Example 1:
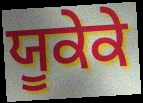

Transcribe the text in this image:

ਯੂਕੇਕੇ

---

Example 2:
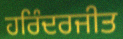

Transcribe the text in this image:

ਹਰਿੰਦਰਜੀਤ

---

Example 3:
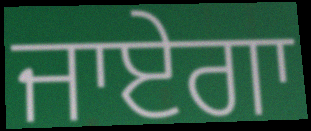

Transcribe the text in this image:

ਜਾਏਗਾ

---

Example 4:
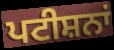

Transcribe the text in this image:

ਪਟੀਸ਼ਨਾਂ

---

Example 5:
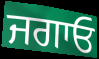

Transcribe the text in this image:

ਜਗਾਓ